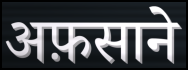
अफ़साने